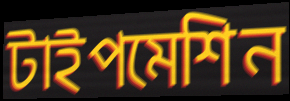
টাইপমেশিন